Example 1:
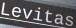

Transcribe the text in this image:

Levitas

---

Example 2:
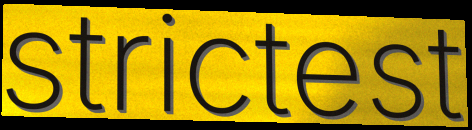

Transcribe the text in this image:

strictest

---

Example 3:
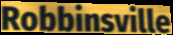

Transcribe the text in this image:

Robbinsville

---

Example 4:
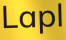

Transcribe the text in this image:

Lapl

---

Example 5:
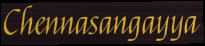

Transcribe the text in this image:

Chennasangayya